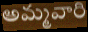
అమ్మవారి